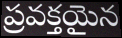
ప్రవక్తయైన